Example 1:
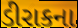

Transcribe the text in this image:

ડીરાકના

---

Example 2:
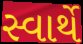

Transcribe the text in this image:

સ્વાર્થે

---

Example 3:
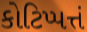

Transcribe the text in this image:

કોટિપ્પત્તં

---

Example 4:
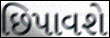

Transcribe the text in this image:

છિપાવશે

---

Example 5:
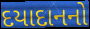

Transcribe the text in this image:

દયાદાનનો